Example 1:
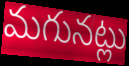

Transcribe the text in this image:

మగునట్లు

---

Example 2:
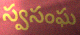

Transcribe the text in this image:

స్వసంఘ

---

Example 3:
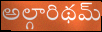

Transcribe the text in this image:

అల్గారిథమ్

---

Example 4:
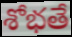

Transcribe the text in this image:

శోభతే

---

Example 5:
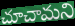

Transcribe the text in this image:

చూచామని